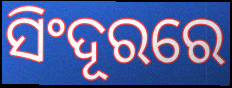
ସିଂଦୂରରେ